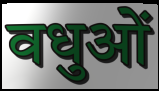
वधुओं